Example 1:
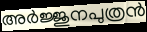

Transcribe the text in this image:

അർജ്ജുനപുത്രൻ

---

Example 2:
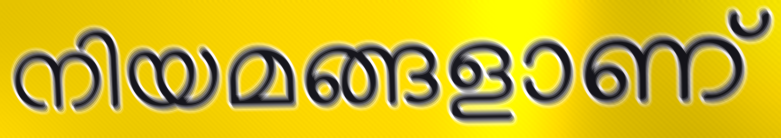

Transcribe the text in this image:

നിയമങ്ങളാണ്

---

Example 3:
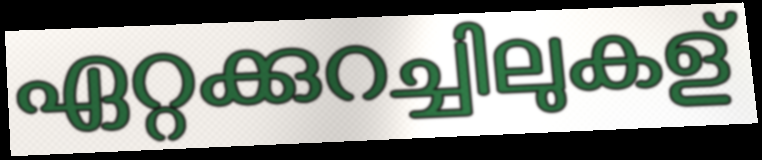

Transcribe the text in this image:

ഏറ്റക്കുറച്ചിലുകള്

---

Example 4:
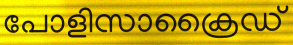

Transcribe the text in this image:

പോളിസാക്രൈഡ്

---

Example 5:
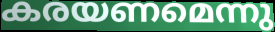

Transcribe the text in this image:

കരയണമെന്നു